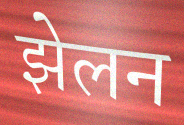
झेलन